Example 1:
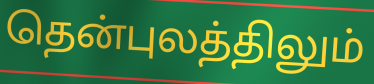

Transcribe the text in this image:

தென்புலத்திலும்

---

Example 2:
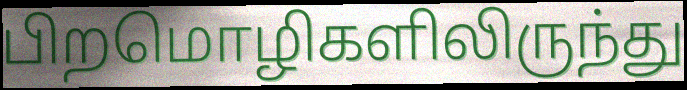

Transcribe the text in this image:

பிறமொழிகளிலிருந்து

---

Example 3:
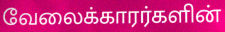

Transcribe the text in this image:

வேலைக்காரர்களின்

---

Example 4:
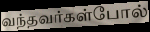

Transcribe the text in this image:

வந்தவர்கள்போல்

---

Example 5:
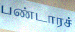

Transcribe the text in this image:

பண்டாரச்